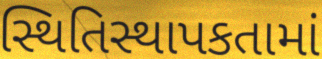
સ્થિતિસ્થાપકતામાં